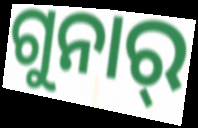
ଗୁନାର୍